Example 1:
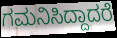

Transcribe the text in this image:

ಗಮನಿಸಿದ್ದಾದರೆ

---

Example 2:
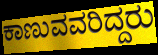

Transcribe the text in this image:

ಕಾಣುವವರಿದ್ದರು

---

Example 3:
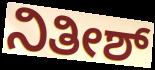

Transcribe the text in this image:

ನಿತೀಶ್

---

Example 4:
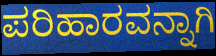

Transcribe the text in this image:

ಪರಿಹಾರವನ್ನಾಗಿ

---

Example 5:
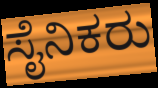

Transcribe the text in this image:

ಸೈನಿಕರು